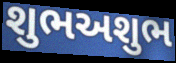
શુભઅશુભ